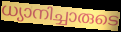
ധ്യാനിച്ചാരുടെ